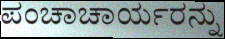
ಪಂಚಾಚಾರ್ಯರನ್ನು